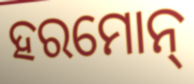
ହରମୋନ୍